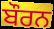
ਬੌਰਨ